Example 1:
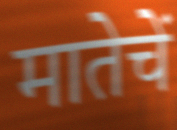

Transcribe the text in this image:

मातेचें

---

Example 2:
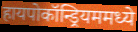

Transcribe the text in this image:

हायपोकॉन्ड्रियममध्ये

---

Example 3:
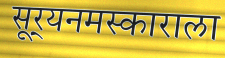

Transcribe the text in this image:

सूर्यनमस्काराला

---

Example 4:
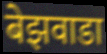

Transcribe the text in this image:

बेझवाडा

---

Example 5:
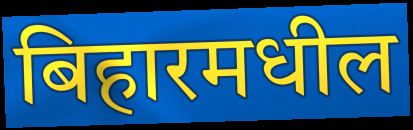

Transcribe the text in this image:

बिहारमधील